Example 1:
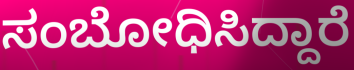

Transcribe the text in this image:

ಸಂಬೋಧಿಸಿದ್ದಾರೆ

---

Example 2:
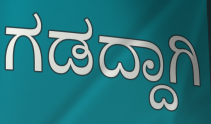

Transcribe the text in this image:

ಗಡದ್ದಾಗಿ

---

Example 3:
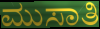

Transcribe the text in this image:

ಮುಸಾತಿ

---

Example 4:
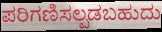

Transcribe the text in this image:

ಪರಿಗಣಿಸಲ್ಪಡಬಹುದು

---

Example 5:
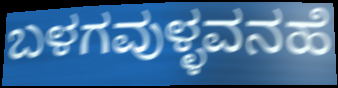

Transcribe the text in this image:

ಬಳಗವುಳ್ಳವನಹೆ